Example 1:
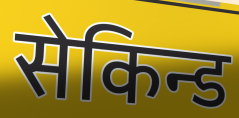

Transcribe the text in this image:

सेकिन्ड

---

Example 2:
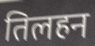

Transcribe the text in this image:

तिलहन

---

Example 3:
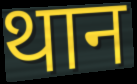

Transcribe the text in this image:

थान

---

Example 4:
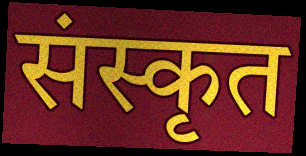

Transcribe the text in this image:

संस्‍कृत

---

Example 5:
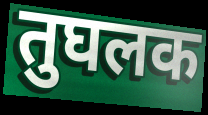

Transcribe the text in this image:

तुघलक